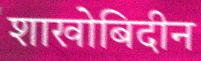
शाखोबिदीन